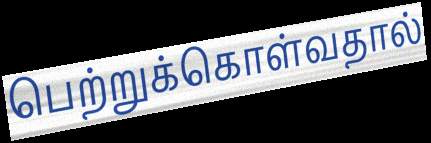
பெற்றுக்கொள்வதால்